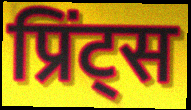
प्रिंट्स